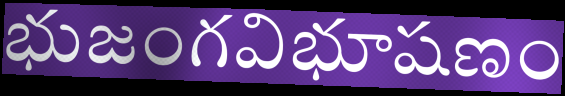
భుజంగవిభూషణం